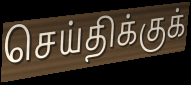
செய்திக்குக்